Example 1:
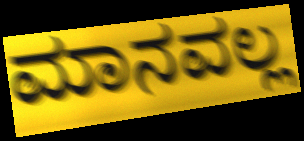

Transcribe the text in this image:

ಮಾನವಲ್ಲ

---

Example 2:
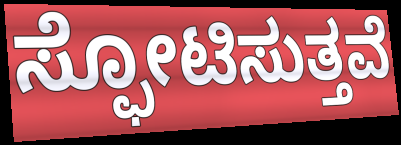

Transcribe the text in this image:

ಸ್ಫೋಟಿಸುತ್ತವೆ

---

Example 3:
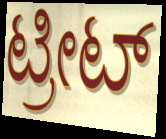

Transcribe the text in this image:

ಟ್ರೀಟ್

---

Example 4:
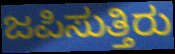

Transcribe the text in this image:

ಜಪಿಸುತ್ತಿರು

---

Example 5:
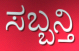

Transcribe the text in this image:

ಸಬ್ಬನ್ತಿ